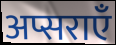
अप्सराएँ